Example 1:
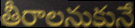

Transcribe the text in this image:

తీరాలనుకునే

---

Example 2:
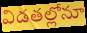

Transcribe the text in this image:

విడతల్లోనూ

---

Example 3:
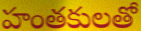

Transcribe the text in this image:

హంతకులతో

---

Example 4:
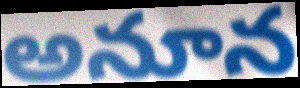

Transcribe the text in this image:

అనూన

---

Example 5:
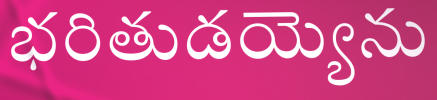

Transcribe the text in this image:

భరితుడయ్యెను